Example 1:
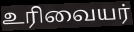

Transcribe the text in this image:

உரிவையர்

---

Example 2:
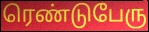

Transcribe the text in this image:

ரெண்டுபேரு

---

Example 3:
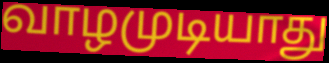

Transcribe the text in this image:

வாழமுடியாது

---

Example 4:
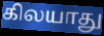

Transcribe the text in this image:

கிலயாது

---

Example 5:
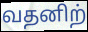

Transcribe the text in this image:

வதனிற்